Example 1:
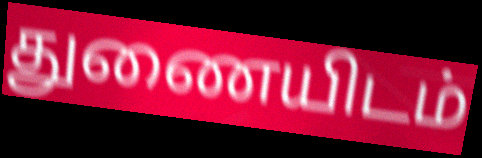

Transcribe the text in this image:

துணையிடம்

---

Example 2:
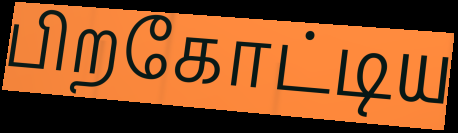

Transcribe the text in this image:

பிறகோட்டிய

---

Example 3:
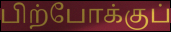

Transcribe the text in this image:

பிற்போக்குப்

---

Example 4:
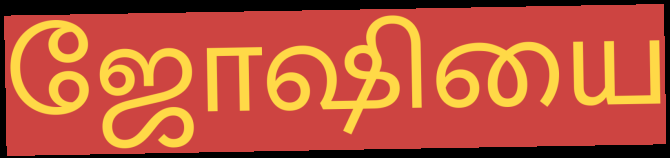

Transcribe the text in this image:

ஜோஷியை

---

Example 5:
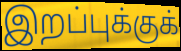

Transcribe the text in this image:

இறப்புக்குக்